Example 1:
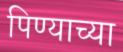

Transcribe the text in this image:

पिण्याच्या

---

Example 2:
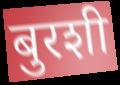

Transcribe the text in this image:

बुरशी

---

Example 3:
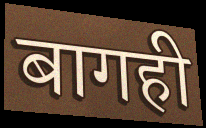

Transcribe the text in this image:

बागही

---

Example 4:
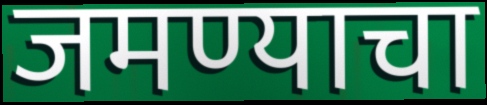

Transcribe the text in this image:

जमण्याचा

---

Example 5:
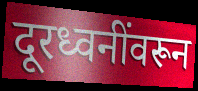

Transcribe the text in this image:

दूरध्वनींवरून